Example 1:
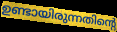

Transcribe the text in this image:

ഉണ്ടായിരുന്നതിന്റെ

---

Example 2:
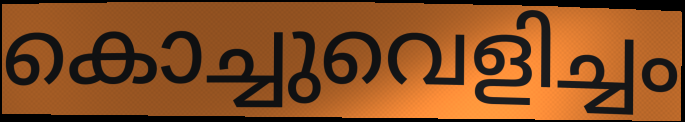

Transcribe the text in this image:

കൊച്ചുവെളിച്ചം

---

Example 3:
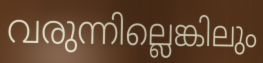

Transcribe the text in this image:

വരുന്നില്ലെങ്കിലും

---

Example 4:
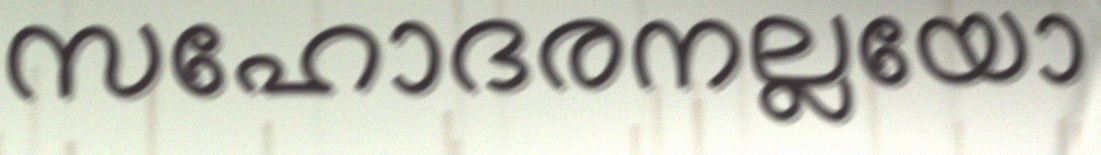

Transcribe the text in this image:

സഹോദരനല്ലയോ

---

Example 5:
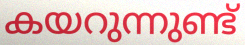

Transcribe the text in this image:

കയറുന്നുണ്ട്